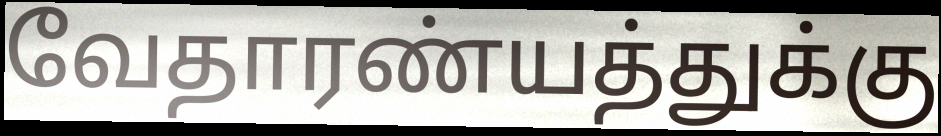
வேதாரண்யத்துக்கு